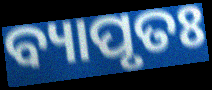
ବ୍ୟାପୃତଃ